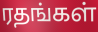
ரதங்கள்